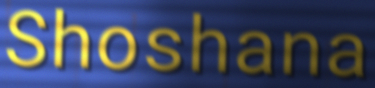
Shoshana